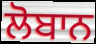
ਲੋਬਾਨ